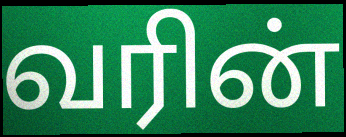
வரின்